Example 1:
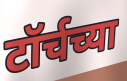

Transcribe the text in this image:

टॉर्चच्या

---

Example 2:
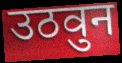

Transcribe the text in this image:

उठवुन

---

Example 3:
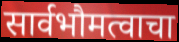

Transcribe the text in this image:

सार्वभौमत्वाचा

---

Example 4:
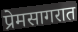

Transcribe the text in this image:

प्रेमसागरात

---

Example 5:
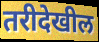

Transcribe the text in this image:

तरीदेखील